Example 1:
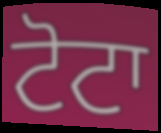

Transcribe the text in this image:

ਟੋਟਾ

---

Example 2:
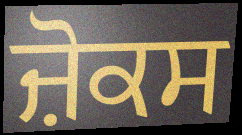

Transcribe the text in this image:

ਜ਼ੋਕਸ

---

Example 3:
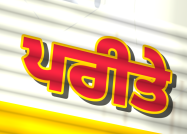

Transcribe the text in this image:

ਪਰੀਤੇ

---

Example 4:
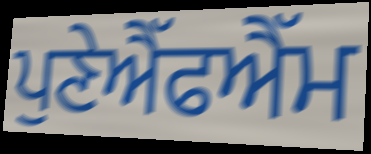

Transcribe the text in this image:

ਪੁਣੇਐੱਫਐੱਮ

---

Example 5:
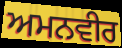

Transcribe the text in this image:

ਅਮਨਵੀਰ